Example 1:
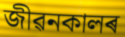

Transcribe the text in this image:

জীৱনকালৰ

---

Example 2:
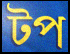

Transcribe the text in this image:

টপ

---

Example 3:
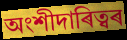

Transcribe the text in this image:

অংশীদাৰিত্বৰ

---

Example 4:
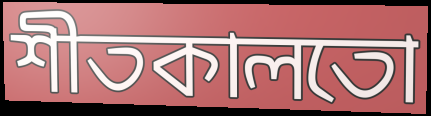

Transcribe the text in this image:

শীতকালতো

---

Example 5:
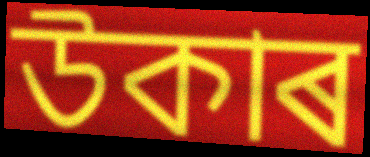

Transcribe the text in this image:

উকাৰ